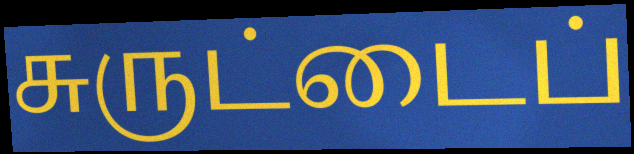
சுருட்டைப்